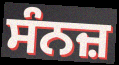
ਸੰਨਜ਼